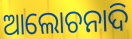
ଆଲୋଚନାଦି